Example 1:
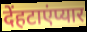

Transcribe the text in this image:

देंहटाएंप्यार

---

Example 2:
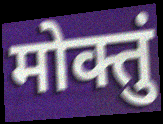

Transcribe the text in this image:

मोक्तुं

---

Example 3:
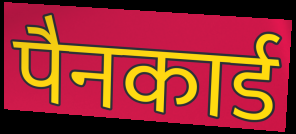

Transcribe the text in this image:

पैनकार्ड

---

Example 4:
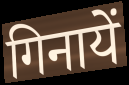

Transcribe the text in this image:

गिनायें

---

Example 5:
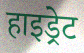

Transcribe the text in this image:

हाइड्रेट